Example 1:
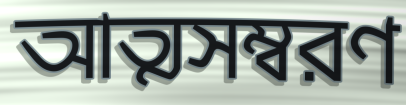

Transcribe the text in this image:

আত্মসম্বরণ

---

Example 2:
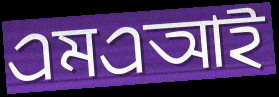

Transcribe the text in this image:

এমএআই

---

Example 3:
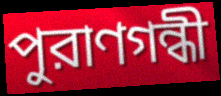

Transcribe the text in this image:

পুরাণগন্ধী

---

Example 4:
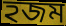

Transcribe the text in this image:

হজম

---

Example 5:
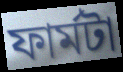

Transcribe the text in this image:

ফার্মটা